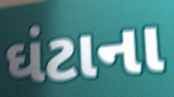
ઘંટાના